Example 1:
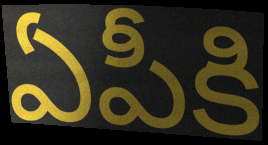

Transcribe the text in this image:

ఏపీకి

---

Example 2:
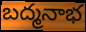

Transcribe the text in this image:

బద్మనాభ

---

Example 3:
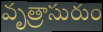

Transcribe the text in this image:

వృత్రాసురుం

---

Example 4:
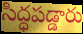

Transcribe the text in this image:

సిద్ధపడ్డారు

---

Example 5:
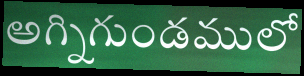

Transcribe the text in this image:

అగ్నిగుండములో